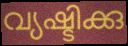
വ്യഷ്ടിക്കു